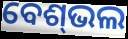
ବେଶ୍‌ଭଲ